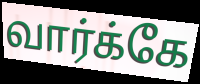
வார்க்கே